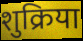
शुक्रिया